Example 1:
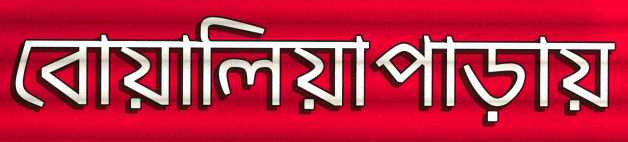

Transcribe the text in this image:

বোয়ালিয়াপাড়ায়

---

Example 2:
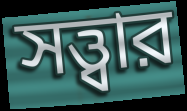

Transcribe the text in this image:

সত্ত্বার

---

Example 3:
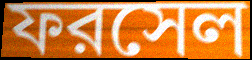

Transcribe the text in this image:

ফরসেল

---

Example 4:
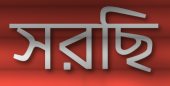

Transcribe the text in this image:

সরছি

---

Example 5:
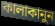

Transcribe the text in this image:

কালাকানুন